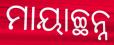
ମାୟାଚ୍ଛନ୍ନ